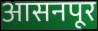
आसनपूर